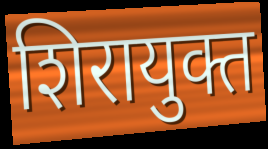
शिरायुक्त